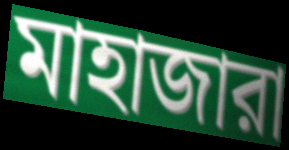
মাহাজারা